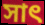
সাৎ